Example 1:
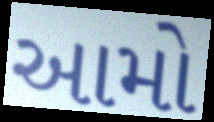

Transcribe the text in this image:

આમો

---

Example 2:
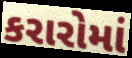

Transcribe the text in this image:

કરારોમાં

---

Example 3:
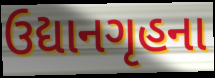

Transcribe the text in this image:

ઉદ્યાનગૃહના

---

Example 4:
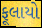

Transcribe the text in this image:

ફૂલાયો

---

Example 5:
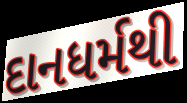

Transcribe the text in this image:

દાનધર્મથી